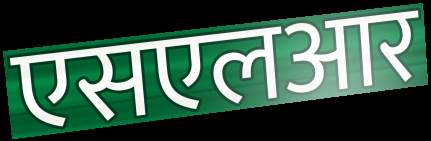
एसएलआर